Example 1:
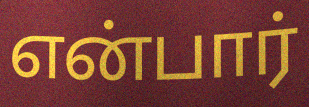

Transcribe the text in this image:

என்பார்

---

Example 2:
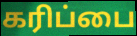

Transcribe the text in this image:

கரிப்பை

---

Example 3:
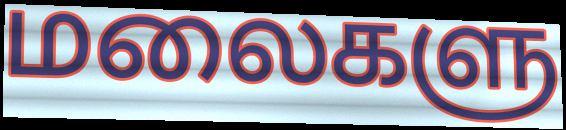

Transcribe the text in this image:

மலைகளு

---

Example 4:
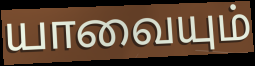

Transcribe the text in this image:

யாவையும்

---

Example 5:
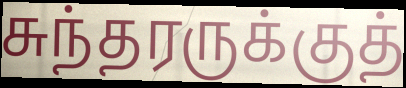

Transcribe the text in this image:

சுந்தரருக்குத்